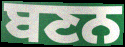
ਬਣਨ